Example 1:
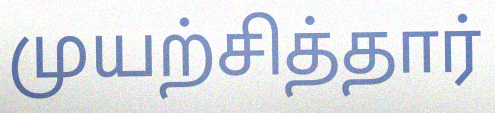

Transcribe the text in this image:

முயற்சித்தார்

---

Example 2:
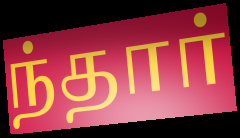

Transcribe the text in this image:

ந்தார்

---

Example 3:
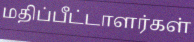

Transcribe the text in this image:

மதிப்பீட்டாளர்கள்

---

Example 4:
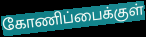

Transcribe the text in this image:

கோணிப்பைக்குள்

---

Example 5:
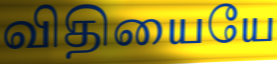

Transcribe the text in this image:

விதியையே